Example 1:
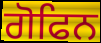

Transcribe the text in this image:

ਗੋਫਿਨ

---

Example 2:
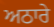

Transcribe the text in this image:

ਅਠਾਰੇ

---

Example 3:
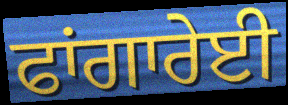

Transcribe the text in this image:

ਫਾਂਗਾਰੇਈ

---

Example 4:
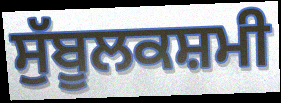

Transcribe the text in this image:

ਸੁੱਬੂਲਕਸ਼ਮੀ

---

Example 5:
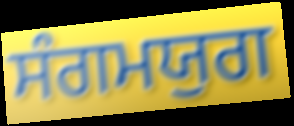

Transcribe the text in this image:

ਸੰਗਮਯੁਗ